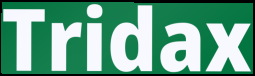
Tridax